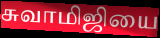
சுவாமிஜியை